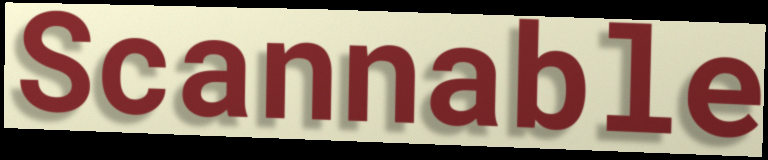
Scannable